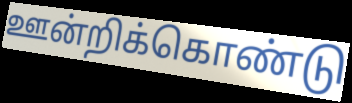
ஊன்றிக்கொண்டு